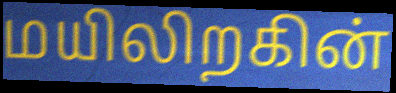
மயிலிறகின்